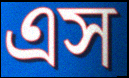
এস